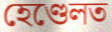
হেণ্ডেলত